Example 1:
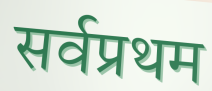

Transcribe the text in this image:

सर्वप्रथम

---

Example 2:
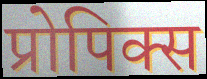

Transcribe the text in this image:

प्रोपिक्स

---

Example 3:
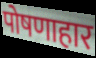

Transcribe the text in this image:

पोषणाहार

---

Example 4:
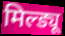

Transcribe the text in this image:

मिल्ड्यू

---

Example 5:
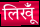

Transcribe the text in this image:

लिखूंँ